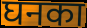
घनका